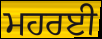
ਮਹਰਈ